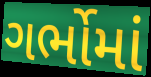
ગર્ભોમાં